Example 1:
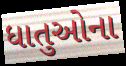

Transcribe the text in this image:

ધાતુઓના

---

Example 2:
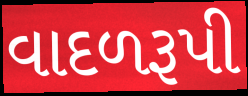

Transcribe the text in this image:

વાદળરૂપી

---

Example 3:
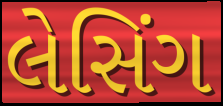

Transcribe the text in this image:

લેસિંગ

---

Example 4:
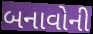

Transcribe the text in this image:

બનાવોની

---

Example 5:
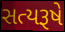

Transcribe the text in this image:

સત્યરૂષે